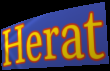
Herat